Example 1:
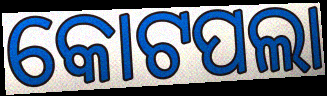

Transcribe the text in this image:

କୋଟପଲା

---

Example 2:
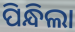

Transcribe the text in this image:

ପିନ୍ଧିଲା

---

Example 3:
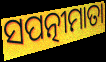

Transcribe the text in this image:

ସପତ୍ନୀମାତା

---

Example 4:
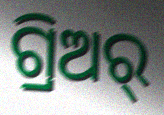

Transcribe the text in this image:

ଗ୍ରିଅର୍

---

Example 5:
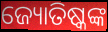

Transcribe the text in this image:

ଜ୍ୟୋତିଷ୍କଙ୍କ